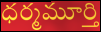
ధర్మమూర్తి